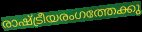
രാഷ്ട്രീയരംഗത്തേക്കു